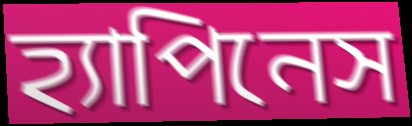
হ্যাপিনেস